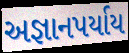
અજ્ઞાનપર્યાય